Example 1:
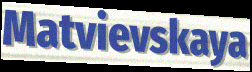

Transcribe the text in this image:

Matvievskaya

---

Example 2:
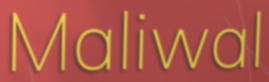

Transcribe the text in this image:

Maliwal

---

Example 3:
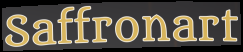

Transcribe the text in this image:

Saffronart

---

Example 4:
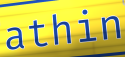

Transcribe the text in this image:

athin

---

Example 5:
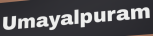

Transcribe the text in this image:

Umayalpuram